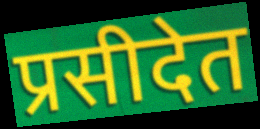
प्रसीदेत